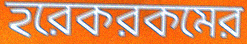
হরেকরকমের